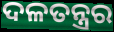
ଦଳତନ୍ତ୍ରର